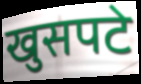
खुसपटे